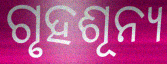
ଗୃହଶୂନ୍ୟ